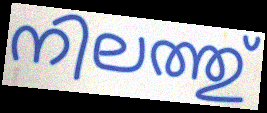
നിലത്തു്